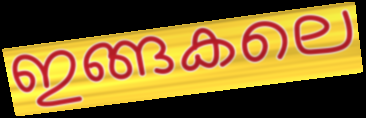
ഇങ്ങകലെ